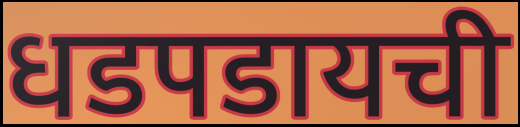
धडपडायची